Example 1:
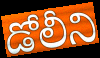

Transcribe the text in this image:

డోలీని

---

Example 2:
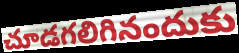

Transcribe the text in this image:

చూడగలిగినందుకు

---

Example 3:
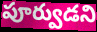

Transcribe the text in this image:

పూర్వుడని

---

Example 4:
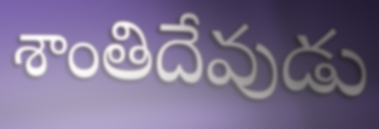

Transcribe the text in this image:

శాంతిదేవుడు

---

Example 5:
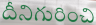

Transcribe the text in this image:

దీనిగురించి